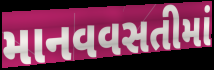
માનવવસતીમાં